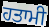
ਹਤਾਮੀ